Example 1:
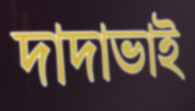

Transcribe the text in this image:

দাদাভাই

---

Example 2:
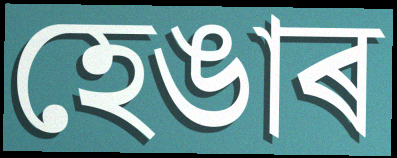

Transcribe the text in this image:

হেঙাৰ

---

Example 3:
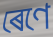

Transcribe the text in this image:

ৰেণে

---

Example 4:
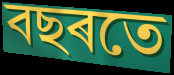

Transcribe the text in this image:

বছৰতে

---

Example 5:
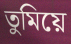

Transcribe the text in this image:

তুমিয়ে